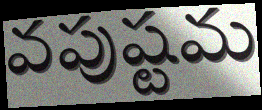
వపుష్టమ